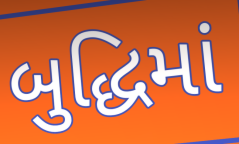
બુદ્ધિમાં